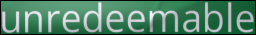
unredeemable